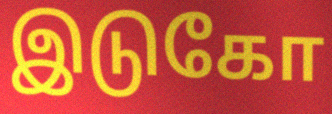
இடுகோ